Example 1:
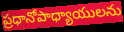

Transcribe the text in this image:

ప్రధానోపాధ్యాయులను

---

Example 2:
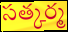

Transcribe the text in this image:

సత్కర్మ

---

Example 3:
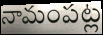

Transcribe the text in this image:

నామంపట్ల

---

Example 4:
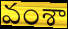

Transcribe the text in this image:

వంశా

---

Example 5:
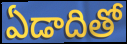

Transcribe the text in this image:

ఏడాదితో